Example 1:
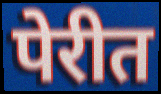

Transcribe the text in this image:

पेरीत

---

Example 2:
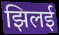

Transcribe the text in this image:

झिलई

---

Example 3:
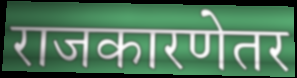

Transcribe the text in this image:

राजकारणेतर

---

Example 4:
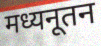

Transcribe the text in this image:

मध्यनूतन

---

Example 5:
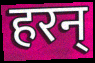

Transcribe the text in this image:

हरन्